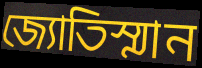
জ্যোতিস্মান